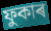
ফুকাৰ